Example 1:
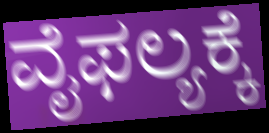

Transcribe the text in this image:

ವೈಫಲ್ಯಕ್ಕೆ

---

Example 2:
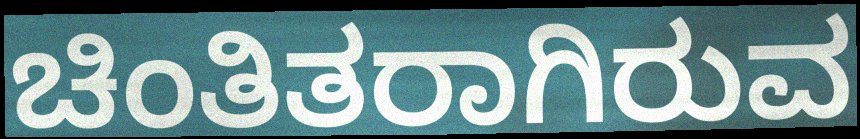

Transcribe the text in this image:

ಚಿಂತಿತರಾಗಿರುವ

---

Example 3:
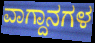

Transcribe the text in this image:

ವಾಗ್ದಾನಗಳ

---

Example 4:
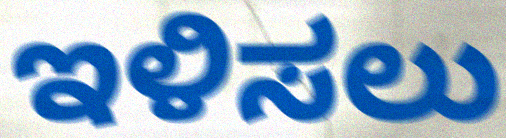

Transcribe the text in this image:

ಇಳಿಸಲು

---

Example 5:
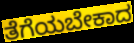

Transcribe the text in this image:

ತೆಗೆಯಬೇಕಾದ